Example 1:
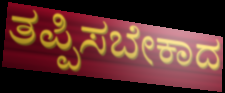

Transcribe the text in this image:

ತಪ್ಪಿಸಬೇಕಾದ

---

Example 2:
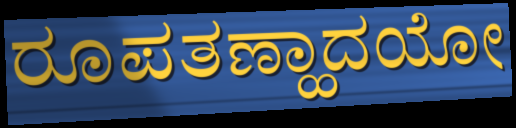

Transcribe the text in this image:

ರೂಪತಣ್ಹಾದಯೋ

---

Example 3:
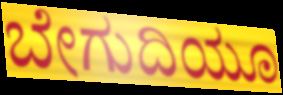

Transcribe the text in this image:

ಬೇಗುದಿಯೂ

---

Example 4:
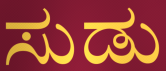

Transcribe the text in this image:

ಸುಡು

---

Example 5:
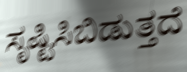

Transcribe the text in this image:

ಸೃಷ್ಟಿಸಿಬಿಡುತ್ತದೆ